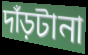
দাঁড়টানা